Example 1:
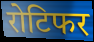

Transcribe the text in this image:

रोटिफर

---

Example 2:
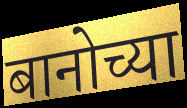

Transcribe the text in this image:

बानोच्या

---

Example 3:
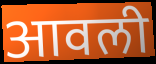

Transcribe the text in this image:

आवली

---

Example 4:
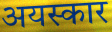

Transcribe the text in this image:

अयस्कार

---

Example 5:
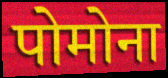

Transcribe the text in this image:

पोमोना